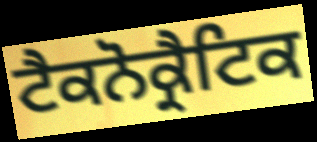
ਟੈਕਨੋਕ੍ਰੈਟਿਕ